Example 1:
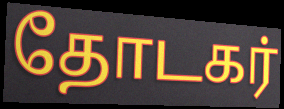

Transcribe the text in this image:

தோடகர்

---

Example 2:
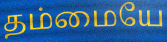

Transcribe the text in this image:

தம்மையே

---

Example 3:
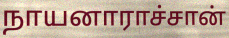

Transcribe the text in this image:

நாயனாராச்சான்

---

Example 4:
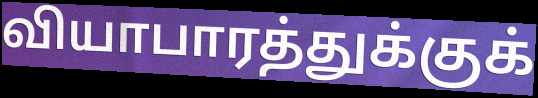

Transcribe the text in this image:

வியாபாரத்துக்குக்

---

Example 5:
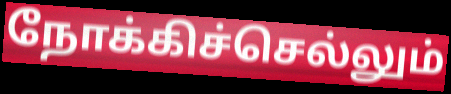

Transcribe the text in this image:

நோக்கிச்செல்லும்